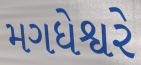
મગધેશ્વરે